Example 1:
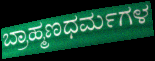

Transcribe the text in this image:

ಬ್ರಾಹ್ಮಣಧರ್ಮಗಳ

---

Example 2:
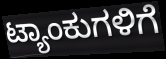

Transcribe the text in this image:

ಟ್ಯಾಂಕುಗಳಿಗೆ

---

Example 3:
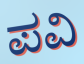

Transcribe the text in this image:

ಪವಿ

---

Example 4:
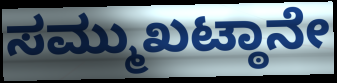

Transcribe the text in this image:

ಸಮ್ಮುಖಟ್ಠಾನೇ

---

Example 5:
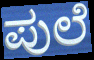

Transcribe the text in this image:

ಪುಲೆ